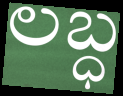
లబ్ధ